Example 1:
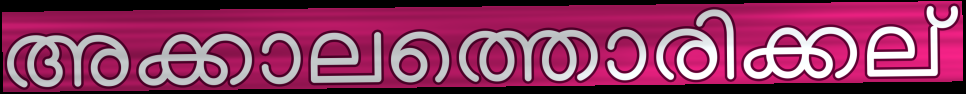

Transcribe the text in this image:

അക്കാലത്തൊരിക്കല്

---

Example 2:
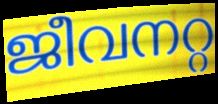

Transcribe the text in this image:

ജീവനറ്റ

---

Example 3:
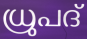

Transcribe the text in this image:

ധ്രുപദ്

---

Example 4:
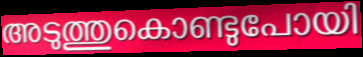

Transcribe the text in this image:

അടുത്തുകൊണ്ടുപോയി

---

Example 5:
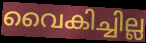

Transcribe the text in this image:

വൈകിച്ചില്ല